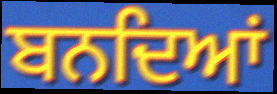
ਬਨਦਿਆਂ